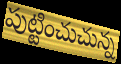
పుట్టించుచున్న